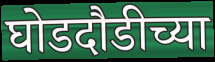
घोडदौडीच्या